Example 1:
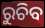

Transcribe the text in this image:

ରୁଚିବ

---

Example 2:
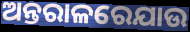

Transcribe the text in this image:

ଅନ୍ତରାଳରେଯାଉ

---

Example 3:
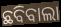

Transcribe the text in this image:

ଛବିବାଲା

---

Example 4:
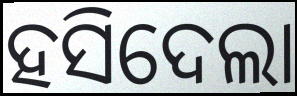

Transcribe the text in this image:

ହସିଦେଲା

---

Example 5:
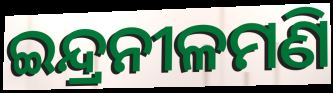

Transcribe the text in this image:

ଇନ୍ଦ୍ରନୀଳମଣି